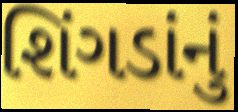
શિંગડાંનું